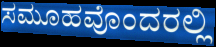
ಸಮೂಹವೊಂದರಲ್ಲಿ